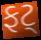
ફટ્